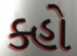
ક્હો